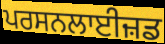
ਪਰਸਨਲਾਈਜ਼ਡ